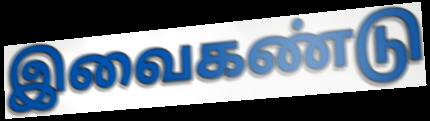
இவைகண்டு